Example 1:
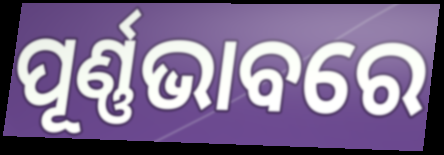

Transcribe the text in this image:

ପୂର୍ଣ୍ଣଭାବରେ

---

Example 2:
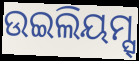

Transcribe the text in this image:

ଉଇଲିୟମ୍ସ୍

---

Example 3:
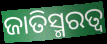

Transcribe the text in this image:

ଜାତିସ୍ମରତ୍ୱ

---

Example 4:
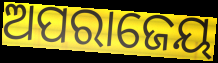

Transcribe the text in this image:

ଅପରାଜେୟ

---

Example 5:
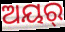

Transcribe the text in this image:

ଅୟର୍